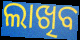
ଲାଖିବ